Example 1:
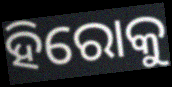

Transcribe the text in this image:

ହିରୋକୁ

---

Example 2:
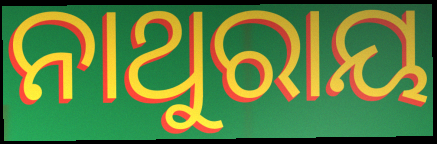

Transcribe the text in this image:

ନାଥୁରାୟ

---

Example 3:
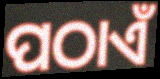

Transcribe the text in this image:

ପଠାଏଁ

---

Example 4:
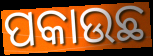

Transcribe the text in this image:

ପକାଉଛ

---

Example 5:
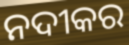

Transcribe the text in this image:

ନଦୀକର